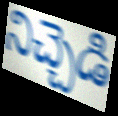
నిచ్చెడి